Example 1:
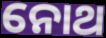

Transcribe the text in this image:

ନୋଥ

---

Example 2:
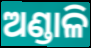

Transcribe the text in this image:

ଅଣ୍ଡାଳି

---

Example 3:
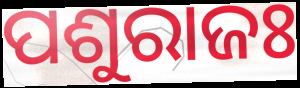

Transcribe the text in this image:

ପଶୁରାଜଃ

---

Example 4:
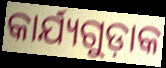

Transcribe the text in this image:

କାର୍ଯ୍ୟଗୁଡ଼ାକ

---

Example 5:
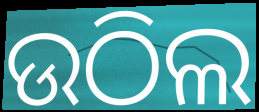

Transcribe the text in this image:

ଉଠିଲ